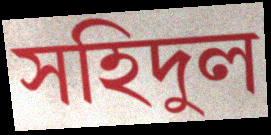
সহিদুল